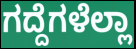
ಗದ್ದೆಗಳೆಲ್ಲಾ